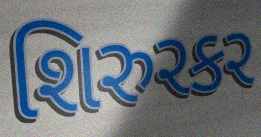
શિરુરકર